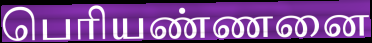
பெரியண்ணனை